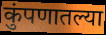
कुंपणातल्या